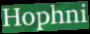
Hophni